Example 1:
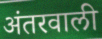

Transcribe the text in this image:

अंतरवाली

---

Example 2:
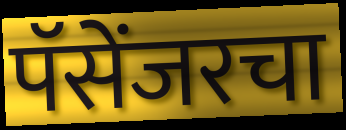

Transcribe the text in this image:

पॅसेंजरचा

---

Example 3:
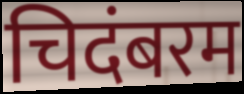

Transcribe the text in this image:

चिदंबरम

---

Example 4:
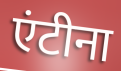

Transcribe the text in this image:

एंटीना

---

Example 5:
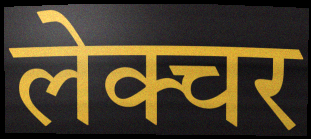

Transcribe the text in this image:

लेक्चर